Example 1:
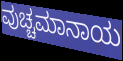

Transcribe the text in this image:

ವುಚ್ಚಮಾನಾಯ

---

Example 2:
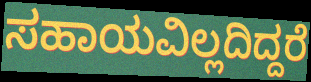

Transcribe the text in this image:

ಸಹಾಯವಿಲ್ಲದಿದ್ದರೆ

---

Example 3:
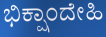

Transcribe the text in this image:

ಭಿಕ್ಷಾಂದೇಹಿ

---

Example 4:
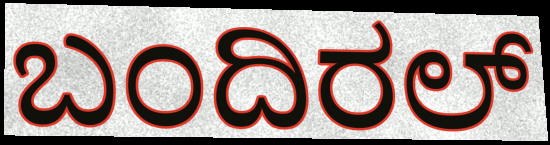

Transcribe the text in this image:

ಬಂದಿರಲ್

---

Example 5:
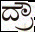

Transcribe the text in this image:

ದ್ರೌ